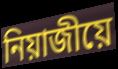
নিয়াজীয়ে